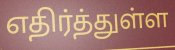
எதிர்த்துள்ள